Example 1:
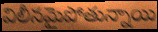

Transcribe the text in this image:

విలీనమైపోతున్నాయి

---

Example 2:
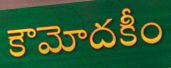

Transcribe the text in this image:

కౌమోదకీం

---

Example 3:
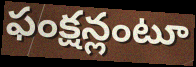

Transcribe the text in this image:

ఫంక్షన్లంటూ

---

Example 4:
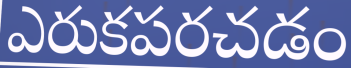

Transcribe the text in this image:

ఎరుకపరచడం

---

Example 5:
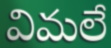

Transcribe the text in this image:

విమలే